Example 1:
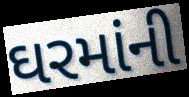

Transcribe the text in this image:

ઘરમાંની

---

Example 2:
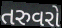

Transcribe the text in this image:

તરુવરો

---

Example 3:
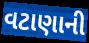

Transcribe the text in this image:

વટાણાની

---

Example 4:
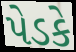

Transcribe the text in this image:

પેડકે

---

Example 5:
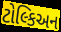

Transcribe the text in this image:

ટોલ્કિઅન